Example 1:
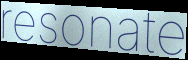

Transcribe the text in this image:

resonate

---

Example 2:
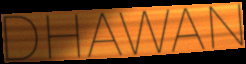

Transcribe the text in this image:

DHAWAN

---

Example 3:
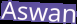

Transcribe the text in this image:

Aswan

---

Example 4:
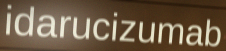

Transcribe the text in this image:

idarucizumab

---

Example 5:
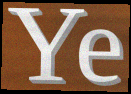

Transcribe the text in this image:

Ye